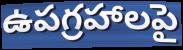
ఉపగ్రహాలపై